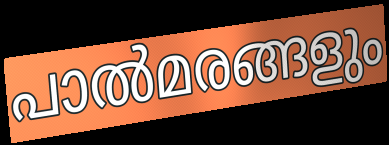
പാൽമരങ്ങളും